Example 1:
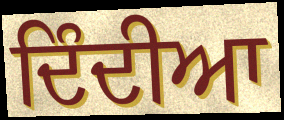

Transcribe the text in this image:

ਦਿੰਦੀਆ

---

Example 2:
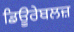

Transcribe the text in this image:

ਡਿਊਰੇਬਲਜ਼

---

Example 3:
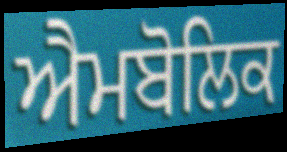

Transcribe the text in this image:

ਐਮਬੋਲਿਕ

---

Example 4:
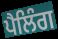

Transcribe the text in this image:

ਪੈਲਿੰਗ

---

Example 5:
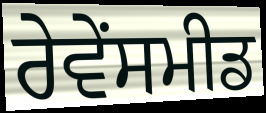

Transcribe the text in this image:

ਰੇਵੇਂਸਮੀਡ